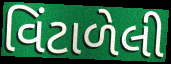
વિંટાળેલી